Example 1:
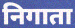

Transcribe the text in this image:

निगाता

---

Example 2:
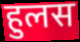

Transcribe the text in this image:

हुलस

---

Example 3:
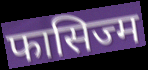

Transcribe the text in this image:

फासिज्म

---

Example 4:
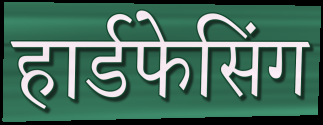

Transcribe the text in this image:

हार्डफेसिंग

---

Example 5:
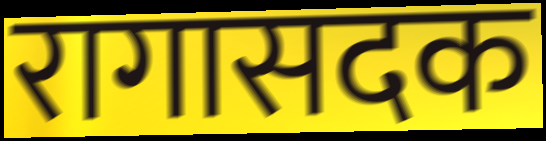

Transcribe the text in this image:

रागासदक